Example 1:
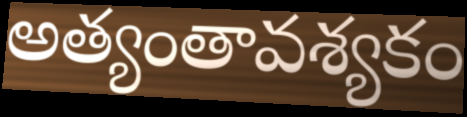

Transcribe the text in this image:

అత్యంతావశ్యకం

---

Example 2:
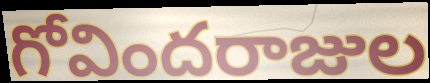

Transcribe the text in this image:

గోవిందరాజుల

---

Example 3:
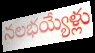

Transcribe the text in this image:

నలభయ్యేళ్లు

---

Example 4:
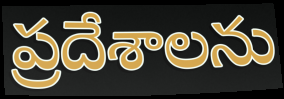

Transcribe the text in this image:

ప్రదేశాలను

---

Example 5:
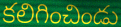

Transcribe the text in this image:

కలిగించిండు